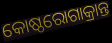
କୋଷ୍ଠରୋଗାକ୍ରାନ୍ତ